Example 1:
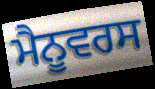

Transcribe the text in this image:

ਮੈਨੂਵਰਸ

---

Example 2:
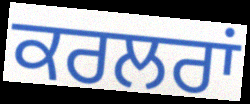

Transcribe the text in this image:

ਕਰਲਰਾਂ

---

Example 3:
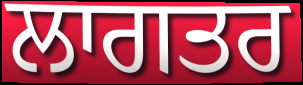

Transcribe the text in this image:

ਲਾਗਤਰ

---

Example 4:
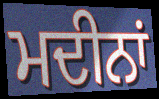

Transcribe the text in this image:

ਮਦੀਨਾਂ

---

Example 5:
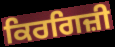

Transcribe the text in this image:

ਕਿਰਗਿਜ਼ੀ